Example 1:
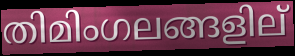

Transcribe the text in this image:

തിമിംഗലങ്ങളില്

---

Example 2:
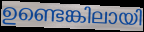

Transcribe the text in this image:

ഉണ്ടെങ്കിലായി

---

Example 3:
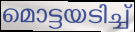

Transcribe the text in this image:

മൊട്ടയടിച്ച്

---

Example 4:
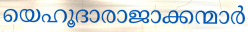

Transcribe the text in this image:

യെഹൂദാരാജാക്കന്മാർ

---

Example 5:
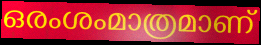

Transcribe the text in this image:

ഒരംശംമാത്രമാണ്